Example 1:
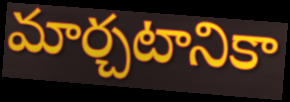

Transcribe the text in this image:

మార్చటానికా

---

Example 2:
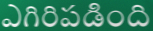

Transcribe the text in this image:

ఎగిరిపడింది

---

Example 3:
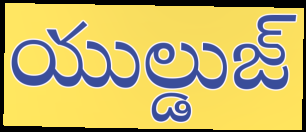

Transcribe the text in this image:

యుల్డుజ్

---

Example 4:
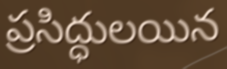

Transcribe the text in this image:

ప్రసిద్ధులయిన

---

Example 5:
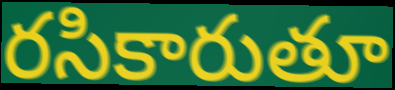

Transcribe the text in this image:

రసికారుతూ